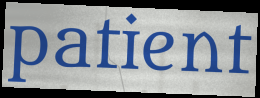
patient